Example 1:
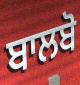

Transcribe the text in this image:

ਬਾਲਬੋ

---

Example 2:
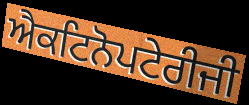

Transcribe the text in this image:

ਐਕਟਿਨੋਪਟੇਰੀਜੀ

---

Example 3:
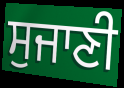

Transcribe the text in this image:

ਸੁਜਾਣੀ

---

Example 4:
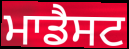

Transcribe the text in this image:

ਮਾਡੈਸਟ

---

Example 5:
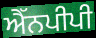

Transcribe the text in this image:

ਐੱਨਪੀਪੀ